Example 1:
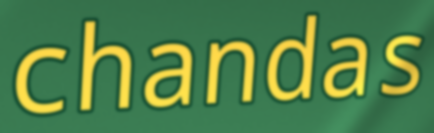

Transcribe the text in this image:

chandas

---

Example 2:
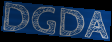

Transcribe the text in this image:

DGDA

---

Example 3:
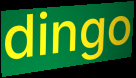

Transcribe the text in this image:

dingo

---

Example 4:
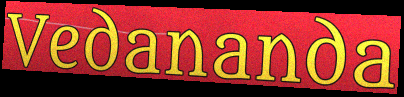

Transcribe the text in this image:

Vedananda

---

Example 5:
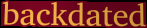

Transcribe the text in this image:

backdated